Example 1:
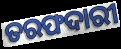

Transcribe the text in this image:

ତରଫଦାରୀ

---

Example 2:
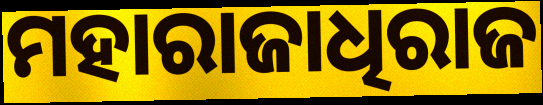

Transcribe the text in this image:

ମହାରାଜାଧିରାଜ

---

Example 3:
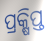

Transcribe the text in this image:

ପ୍ରକ୍ଷିପ୍ତ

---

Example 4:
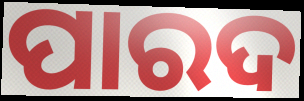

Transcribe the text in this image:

ପାରଦ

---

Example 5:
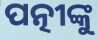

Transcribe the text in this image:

ପତ୍ନୀଙ୍କୁ